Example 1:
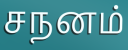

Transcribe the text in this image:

சநனம்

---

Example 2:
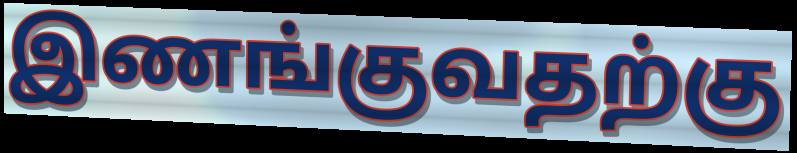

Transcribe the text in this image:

இணங்குவதற்கு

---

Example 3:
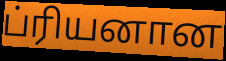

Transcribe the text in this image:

ப்ரியனான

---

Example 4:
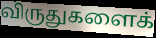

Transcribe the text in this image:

விருதுகளைக்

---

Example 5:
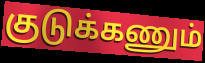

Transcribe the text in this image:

குடுக்கணும்